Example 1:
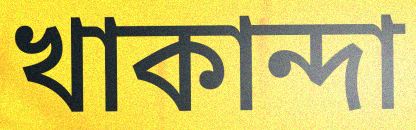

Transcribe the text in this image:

খাকান্দা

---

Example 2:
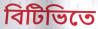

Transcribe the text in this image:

বিটিভিতে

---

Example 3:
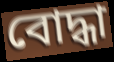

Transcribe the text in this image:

বোদ্ধা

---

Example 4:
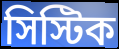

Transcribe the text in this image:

সিস্টিক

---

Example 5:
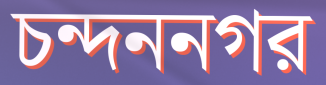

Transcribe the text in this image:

চন্দননগর